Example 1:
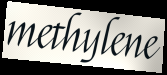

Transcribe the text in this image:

methylene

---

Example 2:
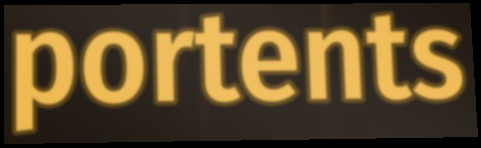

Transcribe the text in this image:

portents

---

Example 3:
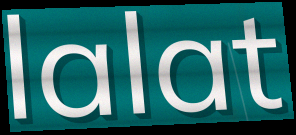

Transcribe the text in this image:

lalat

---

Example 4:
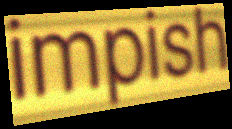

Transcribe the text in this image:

impish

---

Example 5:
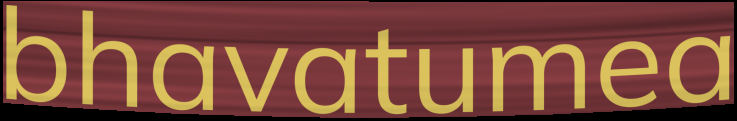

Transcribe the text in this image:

bhavatumea